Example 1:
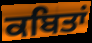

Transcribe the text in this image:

ਕਬਿਤਾਂ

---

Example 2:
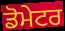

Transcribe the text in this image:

ਡੋਮੇਟਰ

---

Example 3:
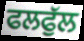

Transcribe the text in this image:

ਫਲਫੁੱਲ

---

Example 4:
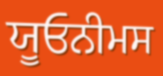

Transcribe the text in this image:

ਯੂਓਨੀਮਸ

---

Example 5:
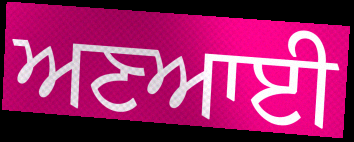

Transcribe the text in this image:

ਅਣਆਈ